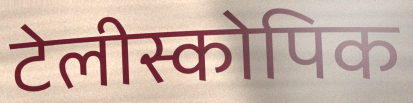
टेलीस्कोपिक